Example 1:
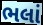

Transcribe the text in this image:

ભલાં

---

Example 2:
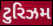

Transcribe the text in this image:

ટુરિઝમ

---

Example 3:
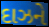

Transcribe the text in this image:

દાઝને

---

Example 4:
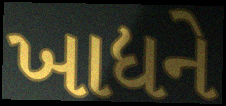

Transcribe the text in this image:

ખાદ્યને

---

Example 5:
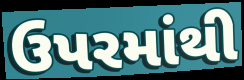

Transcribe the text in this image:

ઉપરમાંથી